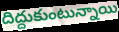
దిద్దుకుంటున్నాయి